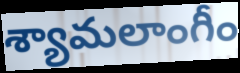
శ్యామలాంగీం